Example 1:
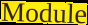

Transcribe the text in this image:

Module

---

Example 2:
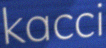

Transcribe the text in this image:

kacci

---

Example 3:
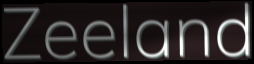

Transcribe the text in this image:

Zeeland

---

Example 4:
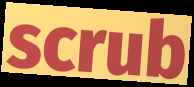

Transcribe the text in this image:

scrub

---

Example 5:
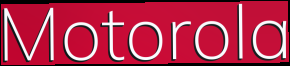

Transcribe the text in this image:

Motorola